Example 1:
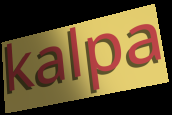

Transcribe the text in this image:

kalpa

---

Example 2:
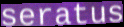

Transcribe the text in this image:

seratus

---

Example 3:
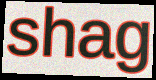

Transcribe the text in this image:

shag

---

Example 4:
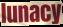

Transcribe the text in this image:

lunacy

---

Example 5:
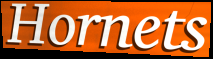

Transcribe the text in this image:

Hornets